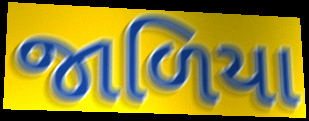
જાળિયા